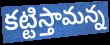
కట్టిస్తామన్న